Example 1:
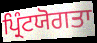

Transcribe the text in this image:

ਪ੍ਰਿੰਟਯੋਗਤਾ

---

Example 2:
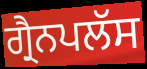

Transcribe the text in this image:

ਗ੍ਰੈਨਪਲੱਸ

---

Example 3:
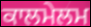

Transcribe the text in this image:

ਕਾਲਮੇਲਮ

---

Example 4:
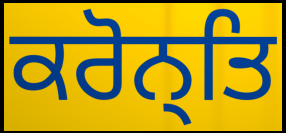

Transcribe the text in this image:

ਕਰੋਨ੍ਤਿ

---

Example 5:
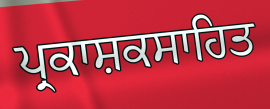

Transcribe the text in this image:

ਪ੍ਰਕਾਸ਼ਕਸਾਹਿਤ